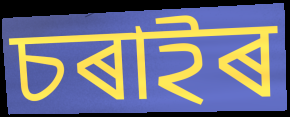
চৰাইৰ